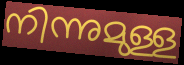
നിന്നുമുള്ള